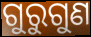
ଗୁରୁଗୁଣ